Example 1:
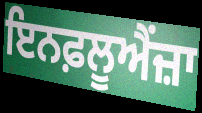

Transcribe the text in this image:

ਇਨਫ਼ਲੂਐਂਜ਼ਾ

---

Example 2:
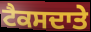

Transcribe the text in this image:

ਟੈਕਸਦਾਤੇ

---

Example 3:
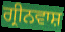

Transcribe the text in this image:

ਗ੍ਰੀਨਵਾਸ਼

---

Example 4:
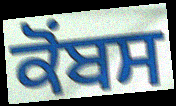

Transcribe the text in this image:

ਕੋਂਬਸ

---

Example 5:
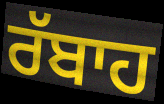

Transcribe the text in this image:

ਰੱਬਾਹ